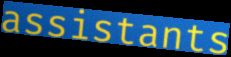
assistants